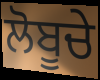
ਲੋਬੂਚੇ